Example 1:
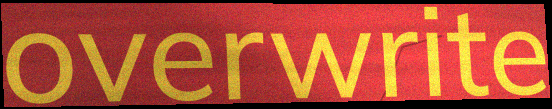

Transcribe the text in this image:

overwrite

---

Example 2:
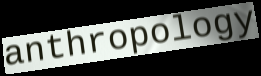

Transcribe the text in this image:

anthropology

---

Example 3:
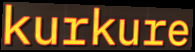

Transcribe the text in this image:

kurkure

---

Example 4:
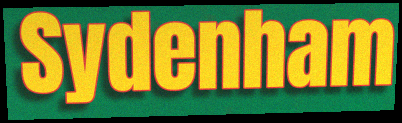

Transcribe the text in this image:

Sydenham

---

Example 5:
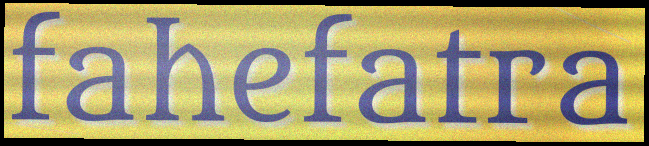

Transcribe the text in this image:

fahefatra